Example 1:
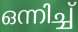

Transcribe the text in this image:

ഒന്നിച്ച്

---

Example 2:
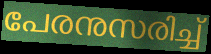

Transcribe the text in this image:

പേരനുസരിച്ച്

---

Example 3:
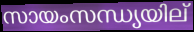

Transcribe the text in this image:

സായംസന്ധ്യയില്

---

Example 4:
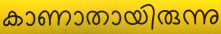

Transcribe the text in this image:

കാണാതായിരുന്നു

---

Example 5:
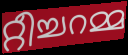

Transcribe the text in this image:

റ്റീച്ചറമ്മ